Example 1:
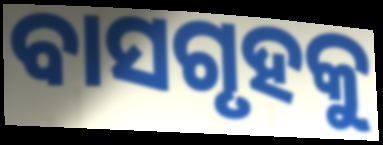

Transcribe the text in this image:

ବାସଗୃହକୁ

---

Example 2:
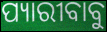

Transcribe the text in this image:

ପ୍ୟାରୀବାବୁ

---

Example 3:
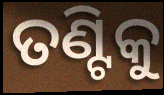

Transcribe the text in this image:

ତଣ୍ଟିକୁ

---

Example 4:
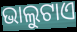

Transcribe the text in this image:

ଭାଲୁଟାଏ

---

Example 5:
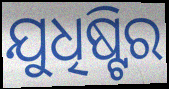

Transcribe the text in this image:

ଯୁଧିଷ୍ଟିର